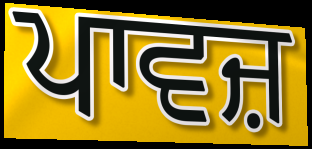
ਪਾਵਜ਼